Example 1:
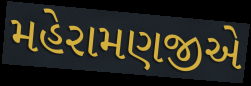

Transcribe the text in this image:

મહેરામણજીએ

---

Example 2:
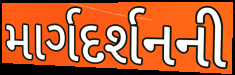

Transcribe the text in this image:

માર્ગદર્શનની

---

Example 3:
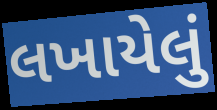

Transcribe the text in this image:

લખાયેલું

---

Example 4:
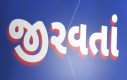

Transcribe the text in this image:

જીરવતાં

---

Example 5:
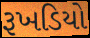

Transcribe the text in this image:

રૂખડિયો